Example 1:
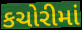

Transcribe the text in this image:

કચોરીમાં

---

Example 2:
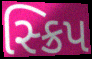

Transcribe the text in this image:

સ્ક્રિપ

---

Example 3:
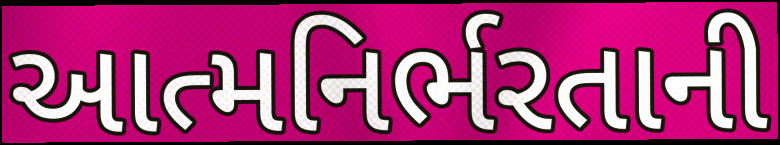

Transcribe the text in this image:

આત્મનિર્ભરતાની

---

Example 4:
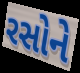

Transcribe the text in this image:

રસોને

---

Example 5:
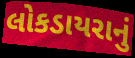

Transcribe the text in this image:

લોકડાયરાનું